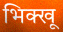
भिक्‍खू